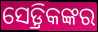
ସେଡ଼୍ରିକଙ୍କର